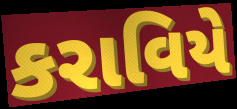
કરાવિયે